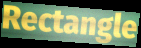
Rectangle